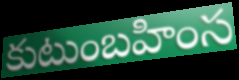
కుటుంబహింస